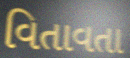
વિતાવતા